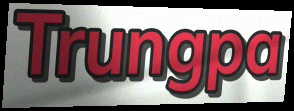
Trungpa